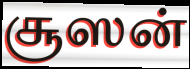
சூஸன்